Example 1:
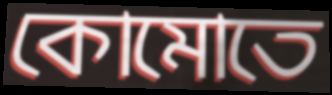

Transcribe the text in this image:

কোমোতে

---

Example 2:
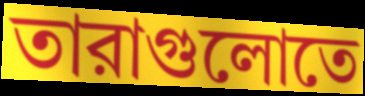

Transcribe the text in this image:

তারাগুলোতে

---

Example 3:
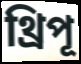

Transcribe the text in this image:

থ্রিপূ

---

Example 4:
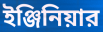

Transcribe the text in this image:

ইঞ্জিনিয়ার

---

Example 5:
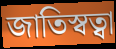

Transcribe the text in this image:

জাতিস্বত্বা